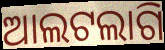
ଆଲଟଲାଗି